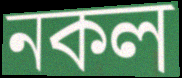
নকল